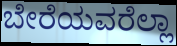
ಬೇರೆಯವರೆಲ್ಲಾ